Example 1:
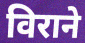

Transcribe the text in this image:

विराने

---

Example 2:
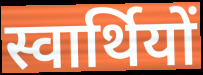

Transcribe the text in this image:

स्वार्थियों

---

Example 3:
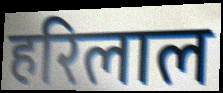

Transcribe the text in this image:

हरिलाल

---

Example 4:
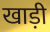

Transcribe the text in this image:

खाड़ी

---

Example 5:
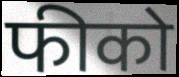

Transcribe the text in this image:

फीको